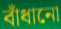
বাঁধানো